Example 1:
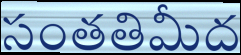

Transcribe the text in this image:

సంతతిమీద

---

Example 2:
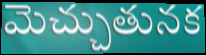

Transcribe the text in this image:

మెచ్చుతునక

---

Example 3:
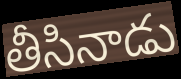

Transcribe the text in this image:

తీసినాడు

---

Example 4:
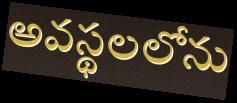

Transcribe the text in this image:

అవస్థలలోను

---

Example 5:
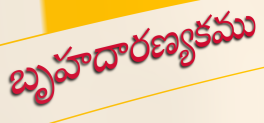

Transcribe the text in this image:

బృహదారణ్యకము